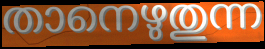
താനെഴുതുന്ന